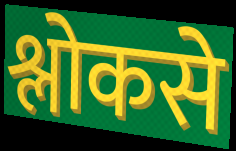
श्लोकसे